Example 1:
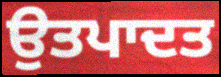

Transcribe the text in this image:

ਉਤਪਾਦਤ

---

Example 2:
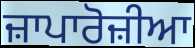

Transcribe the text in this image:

ਜ਼ਾਪਾਰੋਜ਼ੀਆ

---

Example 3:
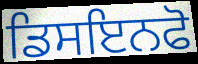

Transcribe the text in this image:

ਡਿਸਇਨਫੋ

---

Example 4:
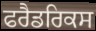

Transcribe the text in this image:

ਫਰੈਡਰਿਕਸ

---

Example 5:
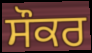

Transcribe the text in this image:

ਸੌਕਰ